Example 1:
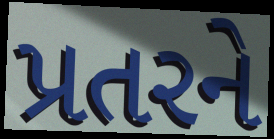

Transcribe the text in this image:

પ્રતરને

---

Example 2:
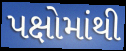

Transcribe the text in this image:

પક્ષોમાંથી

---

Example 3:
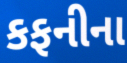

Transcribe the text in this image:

કફનીના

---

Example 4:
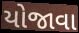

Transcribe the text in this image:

યોજાવા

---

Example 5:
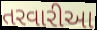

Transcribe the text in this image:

તરવારીઆ